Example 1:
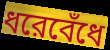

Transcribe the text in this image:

ধরেবেঁধে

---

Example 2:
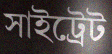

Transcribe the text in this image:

সাইট্রেট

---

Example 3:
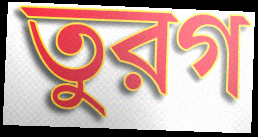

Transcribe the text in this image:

তুরগ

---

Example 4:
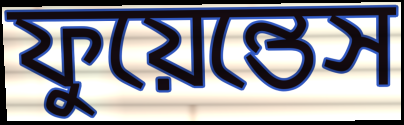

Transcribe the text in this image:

ফুয়েন্তেস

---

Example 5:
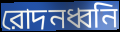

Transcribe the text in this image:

রোদনধ্বনি